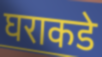
घराकडे